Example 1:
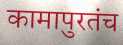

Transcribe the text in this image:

कामापुरतंच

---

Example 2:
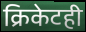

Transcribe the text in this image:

क्रिकेटही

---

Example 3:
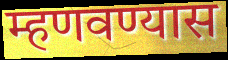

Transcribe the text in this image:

म्हणवण्यास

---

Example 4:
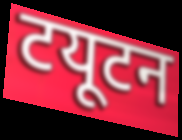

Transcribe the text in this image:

टयूटन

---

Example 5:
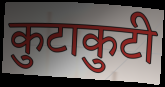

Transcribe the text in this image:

कुटाकुटी